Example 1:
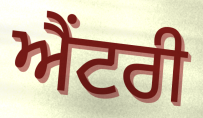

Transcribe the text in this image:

ਐਂਟਰੀ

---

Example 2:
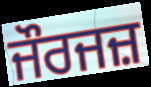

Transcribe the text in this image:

ਜੌਰਜਜ਼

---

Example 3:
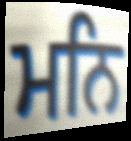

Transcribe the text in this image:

ਮਨਿ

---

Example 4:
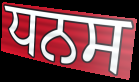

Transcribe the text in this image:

ਧਨਸ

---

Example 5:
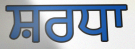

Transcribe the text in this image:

ਸ਼ਰਧਾ